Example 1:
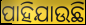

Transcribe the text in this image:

ପାହିଯାଉଛି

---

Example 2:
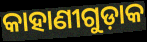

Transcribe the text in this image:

କାହାଣୀଗୁଡ଼ାକ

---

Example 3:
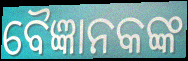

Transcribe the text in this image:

ବୈଜ୍ଞାନକଙ୍କ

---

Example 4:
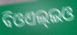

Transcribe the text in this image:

ବିଓଏଲ୍ଇଓ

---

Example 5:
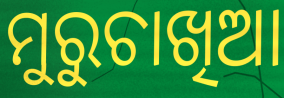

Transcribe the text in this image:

ମୁରୁଚାଖିଆ